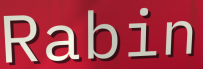
Rabin